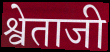
श्वेताजी